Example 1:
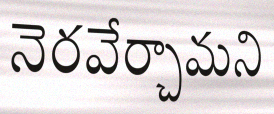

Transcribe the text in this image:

నెరవేర్చామని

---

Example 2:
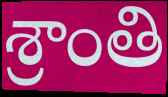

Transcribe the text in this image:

శ్రాంతి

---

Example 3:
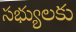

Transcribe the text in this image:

సభ్యులకు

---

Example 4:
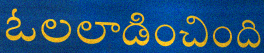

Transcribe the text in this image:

ఓలలాడించింది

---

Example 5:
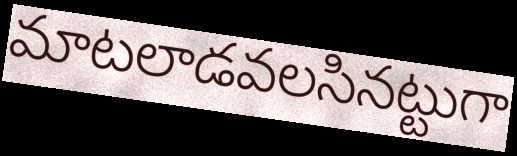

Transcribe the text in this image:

మాటలాడవలసినట్టుగా